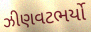
ઝીણવટભર્યો